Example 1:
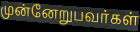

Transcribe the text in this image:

முன்னேறுபவர்கள்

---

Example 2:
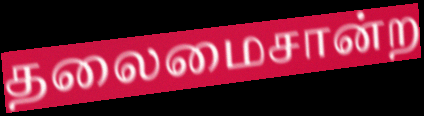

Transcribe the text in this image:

தலைமைசான்ற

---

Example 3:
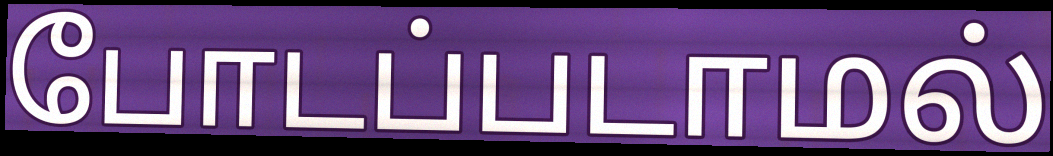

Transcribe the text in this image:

போடப்படாமல்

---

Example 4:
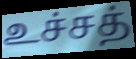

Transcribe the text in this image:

உச்சத்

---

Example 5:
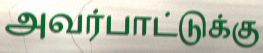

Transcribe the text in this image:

அவர்பாட்டுக்கு